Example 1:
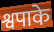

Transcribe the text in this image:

श्वपाके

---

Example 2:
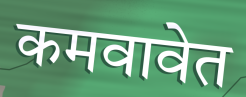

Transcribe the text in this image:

कमवावेत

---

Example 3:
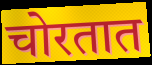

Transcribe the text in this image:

चोरतात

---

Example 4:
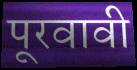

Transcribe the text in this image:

पूरवावी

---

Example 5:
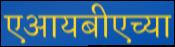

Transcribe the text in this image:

एआयबीएच्या